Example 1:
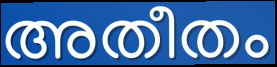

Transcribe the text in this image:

അതീതം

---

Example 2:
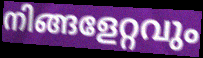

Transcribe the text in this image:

നിങ്ങളേറ്റവും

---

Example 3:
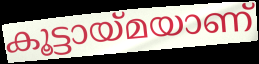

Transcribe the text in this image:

കൂട്ടായ്മയാണ്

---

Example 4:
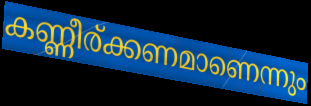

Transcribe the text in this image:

കണ്ണീര്ക്കണമാണെന്നും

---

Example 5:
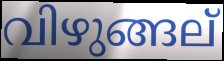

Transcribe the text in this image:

വിഴുങ്ങല്